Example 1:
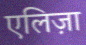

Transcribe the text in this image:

एलिज़ा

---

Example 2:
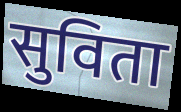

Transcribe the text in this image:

सुविता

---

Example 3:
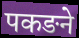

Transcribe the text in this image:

पकङने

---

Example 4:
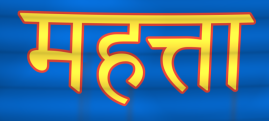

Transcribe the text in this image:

महत्ता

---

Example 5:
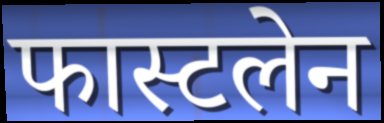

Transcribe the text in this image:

फास्टलेन